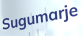
Sugumarje